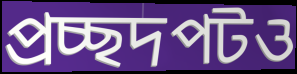
প্রচ্ছদপটও